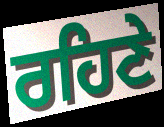
ਰਹਿਣੇ